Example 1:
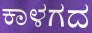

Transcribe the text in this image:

ಕಾಳಗದ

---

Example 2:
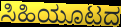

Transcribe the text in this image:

ಸಿಹಿಯೂಟದ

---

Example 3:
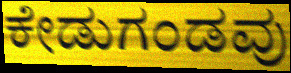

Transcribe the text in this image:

ಕೇಡುಗಂಡವು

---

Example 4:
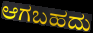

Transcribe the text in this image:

ಆಗಬಹದು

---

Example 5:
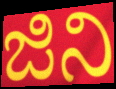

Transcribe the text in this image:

ಜಿನಿ